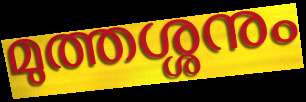
മുത്തശ്ശനും